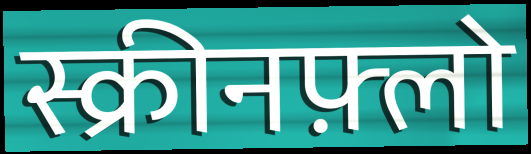
स्क्रीनफ़्लो